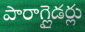
పారాగ్లైడర్లు